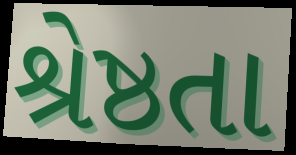
શ્રેષ્ઠતા